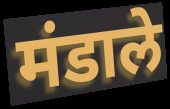
मंडाले